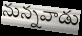
నున్నవాడు